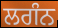
ਲਗੰਨ